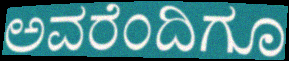
ಅವರೆಂದಿಗೂ